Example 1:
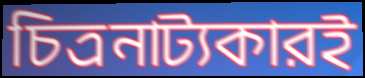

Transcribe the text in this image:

চিত্রনাট্যকারই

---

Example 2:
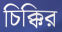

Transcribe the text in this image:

চিক্কির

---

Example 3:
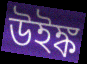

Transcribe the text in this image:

উইঙ্ক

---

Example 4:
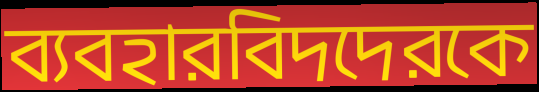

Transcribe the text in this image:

ব্যবহারবিদদেরকে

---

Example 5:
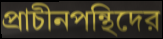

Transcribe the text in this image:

প্রাচীনপন্থিদের